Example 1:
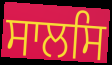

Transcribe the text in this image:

ਸਾਲਸਿ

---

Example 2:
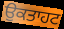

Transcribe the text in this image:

ਉਕਤਾਹਟ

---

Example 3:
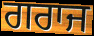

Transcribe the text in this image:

ਗਰਾਜ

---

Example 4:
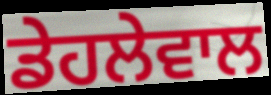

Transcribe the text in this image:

ਡੇਹਲੇਵਾਲ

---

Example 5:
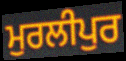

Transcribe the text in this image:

ਮੁਰਲੀਪੁਰ